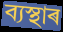
ব্যস্থাৰ